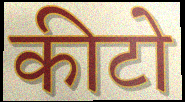
कीटो